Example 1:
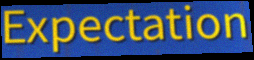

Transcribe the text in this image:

Expectation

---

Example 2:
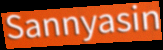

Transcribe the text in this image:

Sannyasin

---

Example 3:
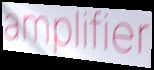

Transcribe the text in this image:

amplifier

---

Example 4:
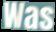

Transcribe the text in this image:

Was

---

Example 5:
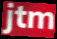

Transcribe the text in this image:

jtm